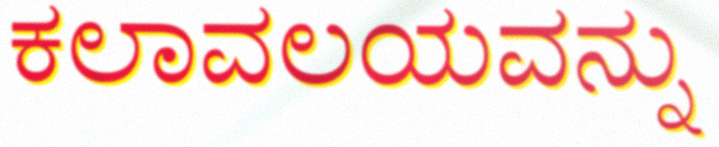
ಕಲಾವಲಯವನ್ನು